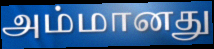
அம்மானது